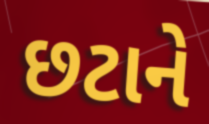
છટાને